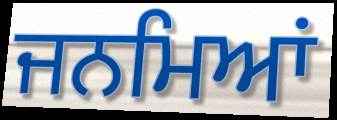
ਜਨਮਿਆਂ